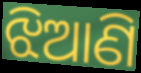
ଝିଆଣି